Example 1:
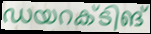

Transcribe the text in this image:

ഡയറക്ടിങ്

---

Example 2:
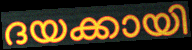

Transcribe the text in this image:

ദയക്കായി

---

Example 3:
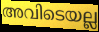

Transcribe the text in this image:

അവിടെയല്ല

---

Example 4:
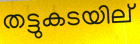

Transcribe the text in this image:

തട്ടുകടയില്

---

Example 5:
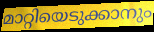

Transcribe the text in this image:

മാറ്റിയെടുക്കാനും